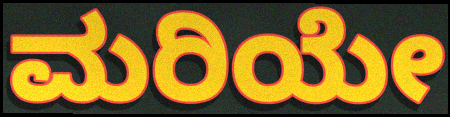
ಮರಿಯೇ